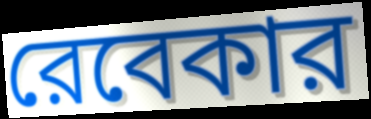
রেবেকার